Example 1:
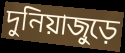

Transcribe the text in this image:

দুনিয়াজুড়ে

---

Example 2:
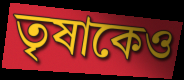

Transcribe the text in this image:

তৃষাকেও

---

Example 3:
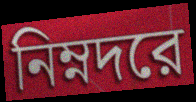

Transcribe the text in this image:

নিম্নদরে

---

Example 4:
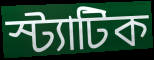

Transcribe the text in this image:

স্ট্যাটিক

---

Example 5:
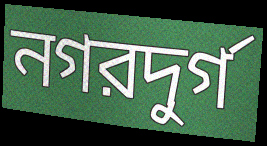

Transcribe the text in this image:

নগরদুর্গ